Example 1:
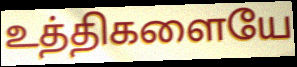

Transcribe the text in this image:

உத்திகளையே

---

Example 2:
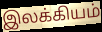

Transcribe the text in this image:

இலக்கியம்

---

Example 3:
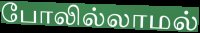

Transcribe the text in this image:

போலில்லாமல்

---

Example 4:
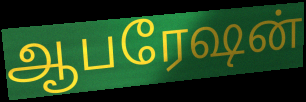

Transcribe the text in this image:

ஆபரேஷன்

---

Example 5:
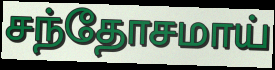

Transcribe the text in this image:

சந்தோசமாய்